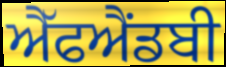
ਐੱਫਐਂਡਬੀ